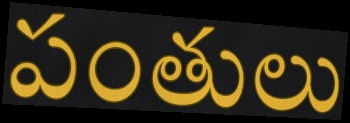
పంతులు